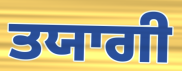
ਤਯਾਗੀ